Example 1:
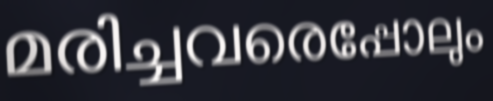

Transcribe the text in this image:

മരിച്ചവരെപ്പോലും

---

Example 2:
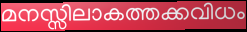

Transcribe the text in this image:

മനസ്സിലാകത്തക്കവിധം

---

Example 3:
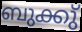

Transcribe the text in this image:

ബുക്കു്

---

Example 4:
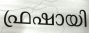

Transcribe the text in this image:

ഫ്രഷായി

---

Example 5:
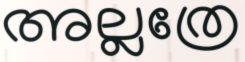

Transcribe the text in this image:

അല്ലത്രേ